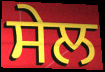
ਸੇਲ